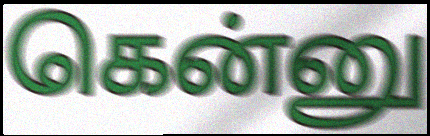
கென்னு